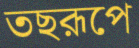
তছরূপে